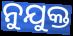
ନୁଯୁକ୍ତ